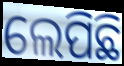
ଲେପିଛି